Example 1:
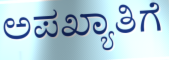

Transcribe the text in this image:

ಅಪಖ್ಯಾತಿಗೆ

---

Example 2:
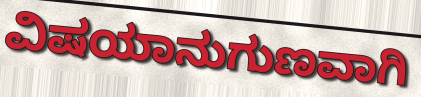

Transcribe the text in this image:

ವಿಷಯಾನುಗುಣವಾಗಿ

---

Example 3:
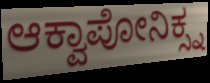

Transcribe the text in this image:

ಆಕ್ವಾಪೋನಿಕ್ಸ್ನ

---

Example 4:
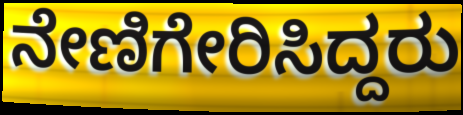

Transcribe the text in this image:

ನೇಣಿಗೇರಿಸಿದ್ದರು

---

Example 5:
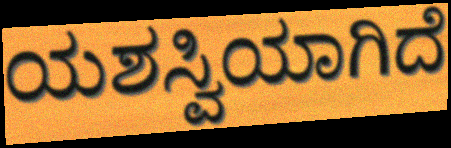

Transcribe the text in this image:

ಯಶಸ್ವಿಯಾಗಿದೆ